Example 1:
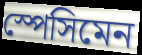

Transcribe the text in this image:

স্পেসিমেন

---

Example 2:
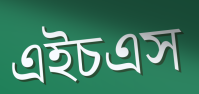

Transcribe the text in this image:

এইচএস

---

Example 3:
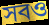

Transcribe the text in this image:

সবও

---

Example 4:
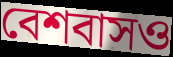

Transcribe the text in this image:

বেশবাসও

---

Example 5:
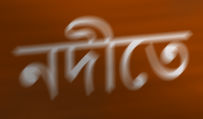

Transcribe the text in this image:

নদীতে